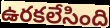
ఉరకలేసింది